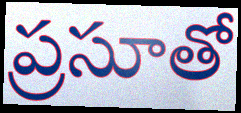
ప్రసూతో